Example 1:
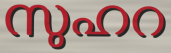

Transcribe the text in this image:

സുഹറ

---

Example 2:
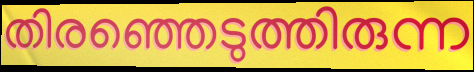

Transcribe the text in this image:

തിരഞ്ഞെടുത്തിരുന്ന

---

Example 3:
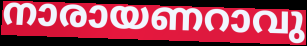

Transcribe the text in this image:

നാരായണറാവു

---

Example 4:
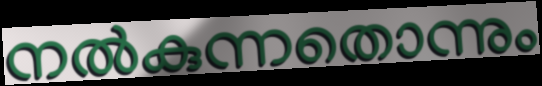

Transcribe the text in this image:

നൽകുന്നതൊന്നും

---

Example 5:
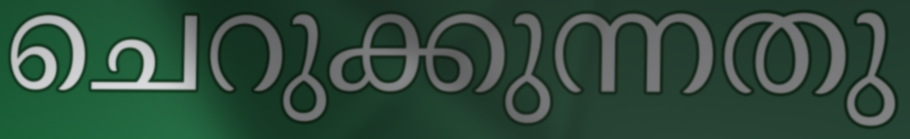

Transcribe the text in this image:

ചെറുക്കുന്നതു